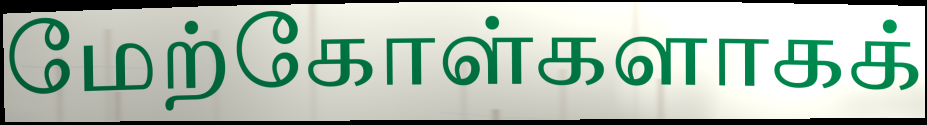
மேற்கோள்களாகக்